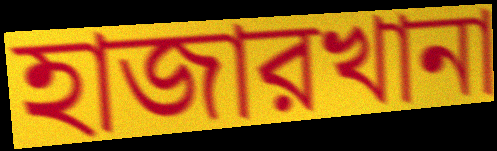
হাজারখানা